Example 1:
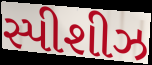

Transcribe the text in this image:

સ્પીશીઝ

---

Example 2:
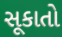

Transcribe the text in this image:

સૂકાતો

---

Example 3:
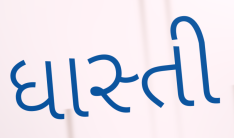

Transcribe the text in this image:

ધાસ્તી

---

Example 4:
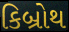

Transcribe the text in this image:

કિબ્રોથ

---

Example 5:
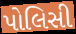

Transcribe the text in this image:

પોલિસી